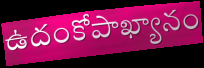
ఉదంకోపాఖ్యానం